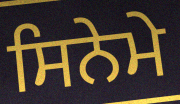
ਸਿਨੇਮੇ